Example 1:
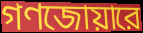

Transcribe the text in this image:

গণজোয়ারে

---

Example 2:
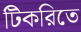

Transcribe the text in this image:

টিকরিতে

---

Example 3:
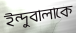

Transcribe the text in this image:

ইন্দুবালাকে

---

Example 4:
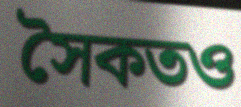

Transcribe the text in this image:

সৈকতও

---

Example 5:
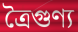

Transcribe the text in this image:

ত্রৈগুণ্য